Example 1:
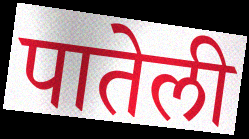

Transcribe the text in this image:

पातेली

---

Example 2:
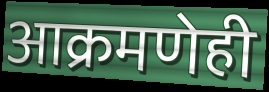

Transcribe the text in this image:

आक्रमणेही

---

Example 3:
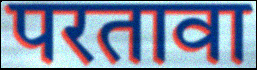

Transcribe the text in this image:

परतावा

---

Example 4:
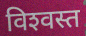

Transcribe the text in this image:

विश्‍वस्त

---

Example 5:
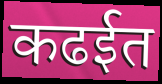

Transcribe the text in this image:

कढईत